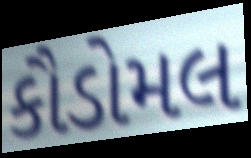
કૌડોમલ